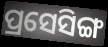
ପ୍ରସେସିଙ୍ଗ